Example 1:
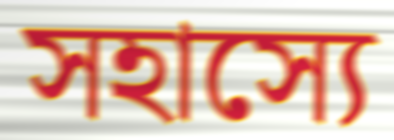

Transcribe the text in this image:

সহাস্যে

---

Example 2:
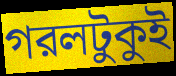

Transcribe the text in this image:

গরলটুকুই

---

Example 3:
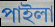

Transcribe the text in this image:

পাইলা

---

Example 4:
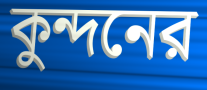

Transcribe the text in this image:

কুন্দনের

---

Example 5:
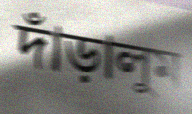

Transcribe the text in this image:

দাঁড়ালুম